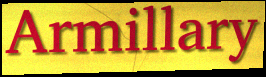
Armillary